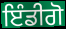
ਇੰਡੀਗੋ